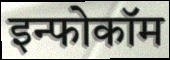
इन्फोकॉम